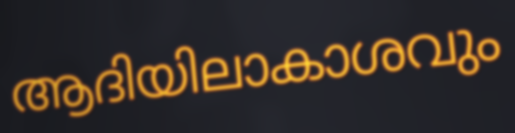
ആദിയിലാകാശവും